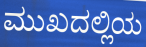
ಮುಖದಲ್ಲಿಯ